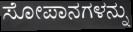
ಸೋಪಾನಗಳನ್ನು